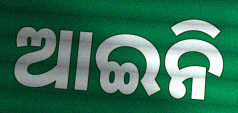
ଆଇନି